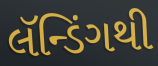
લૅન્ડિંગથી